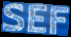
SEF